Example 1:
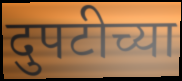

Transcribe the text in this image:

दुपटीच्या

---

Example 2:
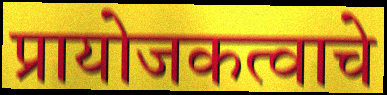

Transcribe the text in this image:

प्रायोजकत्वाचे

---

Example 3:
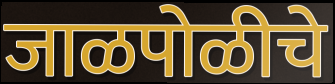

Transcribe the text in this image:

जाळपोळीचे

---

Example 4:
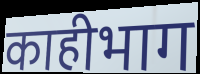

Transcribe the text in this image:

काहीभाग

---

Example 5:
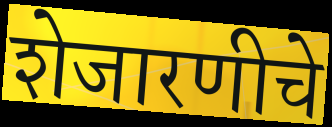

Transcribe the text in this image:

शेजारणीचे